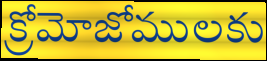
క్రోమోజోములకు